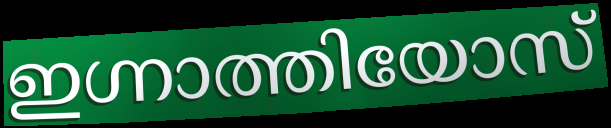
ഇഗ്നാത്തിയോസ്